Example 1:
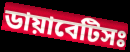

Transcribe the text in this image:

ডায়াবেটিসঃ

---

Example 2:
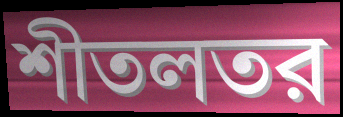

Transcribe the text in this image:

শীতলতর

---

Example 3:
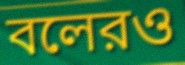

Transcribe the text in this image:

বলেরও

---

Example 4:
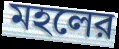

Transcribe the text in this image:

মহলের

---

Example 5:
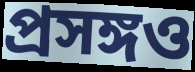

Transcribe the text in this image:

প্রসঙ্গও